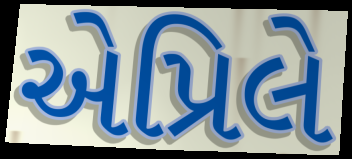
એપ્રિલે